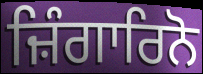
ਜ਼ਿੰਗਾਰਿਨੋ